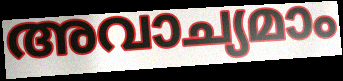
അവാച്യമാം